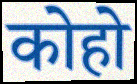
कोहो